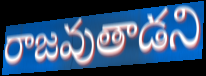
రాజవుతాడని